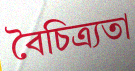
বৈচিত্ৰ্যতা